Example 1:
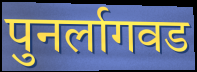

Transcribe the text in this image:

पुनर्लागवड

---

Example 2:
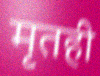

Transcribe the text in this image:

मृतही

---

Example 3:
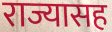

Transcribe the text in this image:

राज्यासह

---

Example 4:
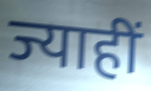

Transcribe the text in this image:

ज्याहीं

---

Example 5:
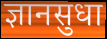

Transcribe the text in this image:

ज्ञानसुधा